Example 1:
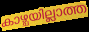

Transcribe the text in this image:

കാഴ്ചയില്ലാത്ത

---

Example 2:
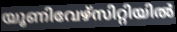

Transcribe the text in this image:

യൂണിവേഴ്സിറ്റിയിൽ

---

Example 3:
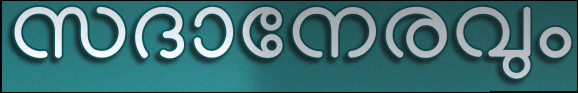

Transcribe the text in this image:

സദാനേരവും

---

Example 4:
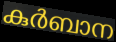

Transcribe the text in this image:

കുർബാന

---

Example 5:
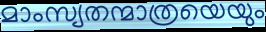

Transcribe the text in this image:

മാംസ്യതന്മാത്രയെയും